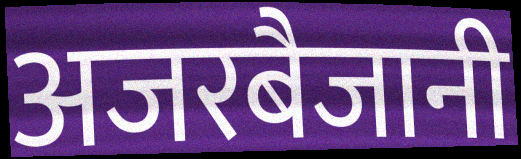
अजरबैजानी